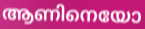
ആണിനെയോ